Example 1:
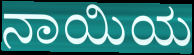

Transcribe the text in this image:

ನಾಯಿಯ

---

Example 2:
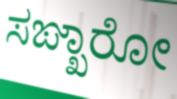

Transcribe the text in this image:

ಸಙ್ಖಾರೋ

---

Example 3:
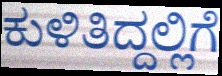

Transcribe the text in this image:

ಕುಳಿತಿದ್ದಲ್ಲಿಗೆ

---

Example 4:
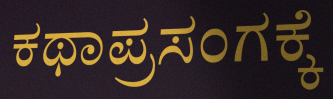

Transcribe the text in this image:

ಕಥಾಪ್ರಸಂಗಕ್ಕೆ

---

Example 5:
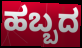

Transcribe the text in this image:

ಹಬ್ಬದ